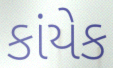
કાંયેક